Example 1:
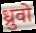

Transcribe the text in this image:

ध्रुवो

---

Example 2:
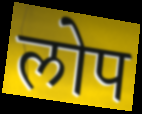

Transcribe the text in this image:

लोप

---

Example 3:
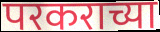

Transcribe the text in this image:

परकराच्या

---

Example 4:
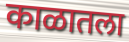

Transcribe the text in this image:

काळातला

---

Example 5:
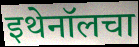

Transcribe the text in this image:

इथेनॉलचा